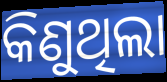
କିଣୁଥିଲା